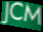
JCM